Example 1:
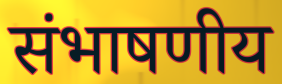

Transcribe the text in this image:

संभाषणीय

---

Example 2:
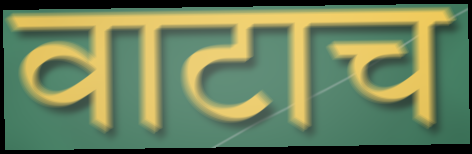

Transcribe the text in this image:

वाटाच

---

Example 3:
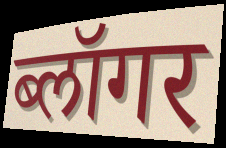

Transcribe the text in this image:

ब्लॉगर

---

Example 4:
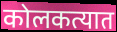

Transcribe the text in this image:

कोलकत्यात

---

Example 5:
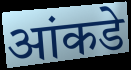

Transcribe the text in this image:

आंकडे